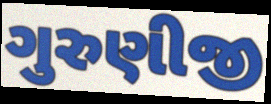
ગુરુણીજી